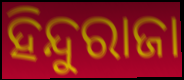
ହିନ୍ଦୁରାଜା